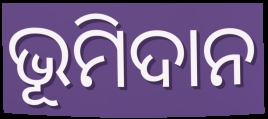
ଭୂମିଦାନ